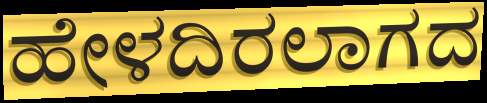
ಹೇಳದಿರಲಾಗದ